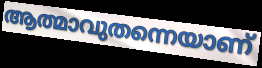
ആത്മാവുതന്നെയാണ്